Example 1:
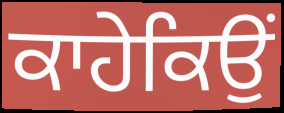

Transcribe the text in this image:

ਕਾਹੇਕਿਉਂ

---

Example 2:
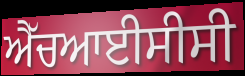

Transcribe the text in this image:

ਐੱਚਆਈਸੀਸੀ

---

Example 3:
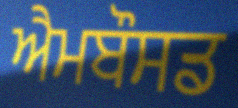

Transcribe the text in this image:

ਐਮਬੌਸਡ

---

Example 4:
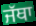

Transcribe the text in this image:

ਜੱਥਾ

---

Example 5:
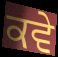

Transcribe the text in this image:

ਕਵੇ